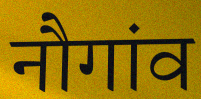
नौगांव